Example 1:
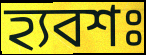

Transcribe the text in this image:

হ্যবশঃ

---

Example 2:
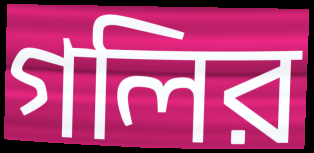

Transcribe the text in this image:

গলির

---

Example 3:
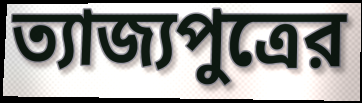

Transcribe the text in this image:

ত্যাজ্যপুত্রের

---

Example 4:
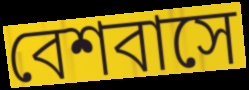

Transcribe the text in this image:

বেশবাসে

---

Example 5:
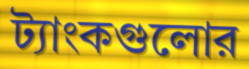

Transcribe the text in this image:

ট্যাংকগুলোর